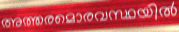
അത്തരമൊരവസ്ഥയിൽ